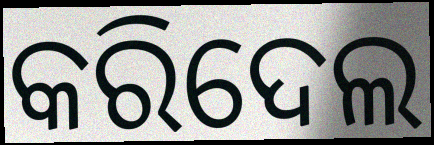
କରିଦେଲ